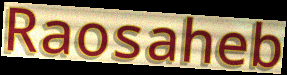
Raosaheb